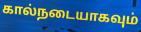
கால்நடையாகவும்